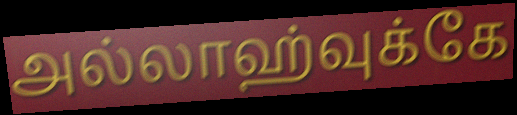
அல்லாஹ்வுக்கே